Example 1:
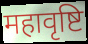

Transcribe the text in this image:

महावृष्टि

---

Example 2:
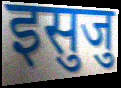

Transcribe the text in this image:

इसुजु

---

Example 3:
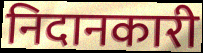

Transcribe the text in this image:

निदानकारी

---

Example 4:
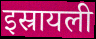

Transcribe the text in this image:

इस्रायली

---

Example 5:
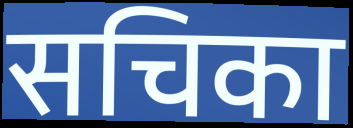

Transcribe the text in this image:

सचिका